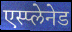
एस्प्लेनेड